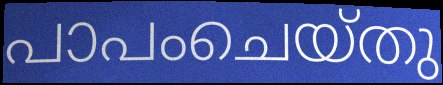
പാപംചെയ്തു